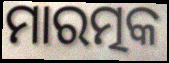
ମାରତ୍ମକ